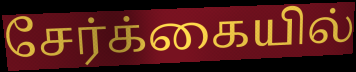
சேர்க்கையில்